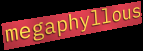
megaphyllous